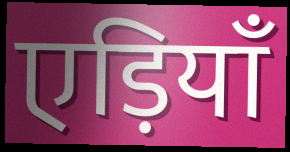
एड़ियाँ